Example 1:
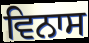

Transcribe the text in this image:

ਵਿਨਾਸ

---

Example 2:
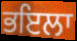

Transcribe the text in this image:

ਭਇਲਾ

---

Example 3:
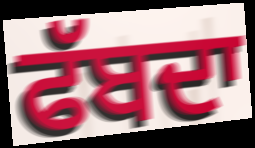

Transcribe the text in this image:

ਫੱਬਦਾ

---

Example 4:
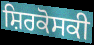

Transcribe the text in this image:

ਸ਼ਿਰਕੋਸਕੀ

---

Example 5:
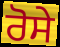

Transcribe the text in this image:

ਰੋਸੇ